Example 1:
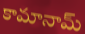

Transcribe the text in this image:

కామానామ్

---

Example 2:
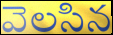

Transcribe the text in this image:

వెలసిన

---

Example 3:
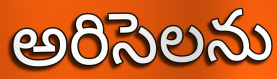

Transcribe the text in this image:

అరిసెలను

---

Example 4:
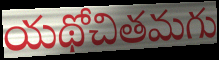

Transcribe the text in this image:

యథోచితమగు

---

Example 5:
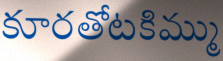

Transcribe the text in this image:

కూరతోటకిమ్ము